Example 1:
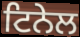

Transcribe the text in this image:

ਟਿਨੇਲ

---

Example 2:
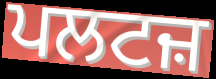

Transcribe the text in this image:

ਪਲਟਜ਼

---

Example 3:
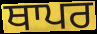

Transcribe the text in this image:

ਥਾਪਰ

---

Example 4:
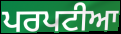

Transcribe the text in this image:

ਪਰਪਟੀਆ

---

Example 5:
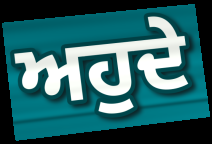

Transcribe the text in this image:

ਅਹੁਦੇ